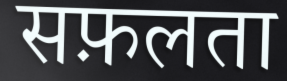
सफ़लता